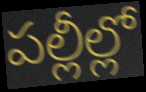
పల్లీల్లో